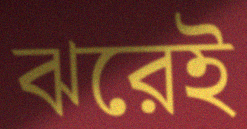
ঝরেই